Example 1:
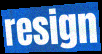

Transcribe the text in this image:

resign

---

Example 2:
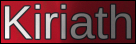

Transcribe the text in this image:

Kiriath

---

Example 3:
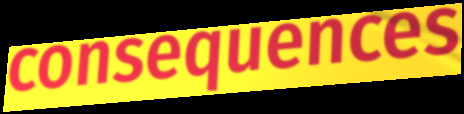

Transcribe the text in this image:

consequences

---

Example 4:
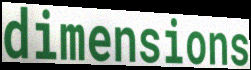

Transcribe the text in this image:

dimensions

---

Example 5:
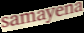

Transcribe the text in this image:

samayena